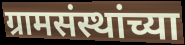
ग्रामसंस्थांच्या